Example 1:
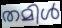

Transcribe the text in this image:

തമിൾ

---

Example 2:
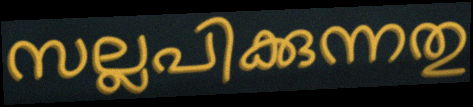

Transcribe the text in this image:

സല്ലപിക്കുന്നതു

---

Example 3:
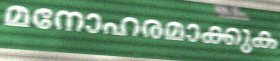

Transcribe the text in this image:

മനോഹരമാക്കുക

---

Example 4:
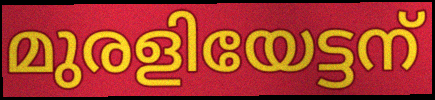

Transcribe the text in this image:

മുരളിയേട്ടന്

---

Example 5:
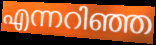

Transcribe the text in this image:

എന്നറിഞ്ഞ